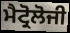
ਮੈਟ੍ਰੋਲੋਜੀ